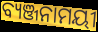
ବ୍ୟଞ୍ଜନାମୟୀ